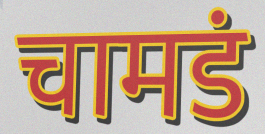
चामडं